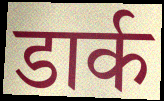
डार्क